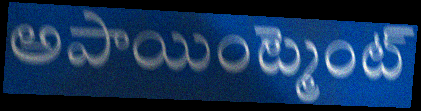
అపాయింట్మెంట్